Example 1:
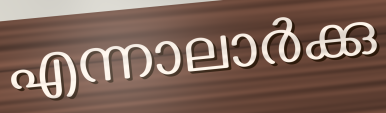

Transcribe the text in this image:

എന്നാലാർക്കു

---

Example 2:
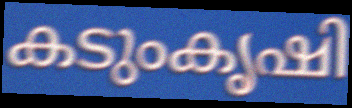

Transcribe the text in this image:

കടുംകൃഷി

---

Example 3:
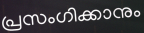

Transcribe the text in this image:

പ്രസംഗിക്കാനും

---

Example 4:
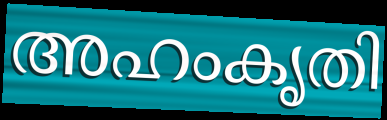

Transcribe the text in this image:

അഹംകൃതി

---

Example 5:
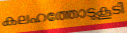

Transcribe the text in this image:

കലഹത്തോടുകൂടി